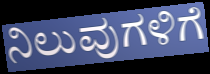
ನಿಲುವುಗಳಿಗೆ